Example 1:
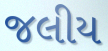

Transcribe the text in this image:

જલીય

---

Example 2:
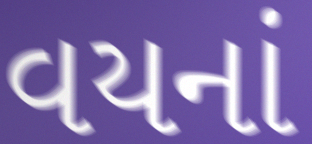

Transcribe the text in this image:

વયનાં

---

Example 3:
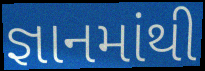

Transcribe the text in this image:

જ્ઞાનમાંથી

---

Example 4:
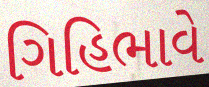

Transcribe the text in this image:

ગિહિભાવે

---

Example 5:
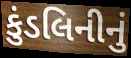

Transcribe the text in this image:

કુંડલિનીનું